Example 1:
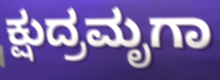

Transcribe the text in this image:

ಕ್ಷುದ್ರಮೃಗಾ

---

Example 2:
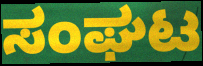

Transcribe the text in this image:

ಸಂಘಟ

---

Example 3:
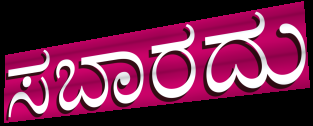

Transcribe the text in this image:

ಸಬಾರದು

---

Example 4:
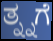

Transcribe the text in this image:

ತ್ನ್ನಗೆ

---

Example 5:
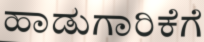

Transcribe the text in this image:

ಹಾಡುಗಾರಿಕೆಗೆ